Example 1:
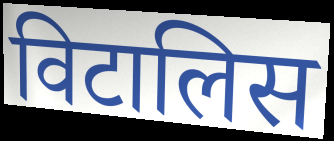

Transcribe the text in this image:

विटालिस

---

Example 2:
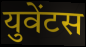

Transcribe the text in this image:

युवेंटस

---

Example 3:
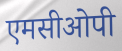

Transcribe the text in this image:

एमसीओपी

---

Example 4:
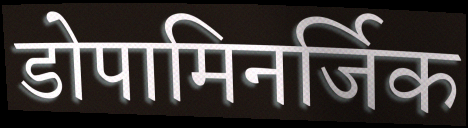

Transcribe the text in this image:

डोपामिनर्जिक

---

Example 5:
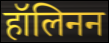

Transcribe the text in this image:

हॉलिनन